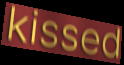
kissed